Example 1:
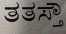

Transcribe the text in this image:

ತತಸ್ತೌ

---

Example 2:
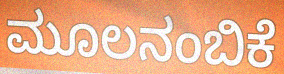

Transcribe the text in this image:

ಮೂಲನಂಬಿಕೆ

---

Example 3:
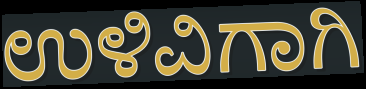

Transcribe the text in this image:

ಉಳಿವಿಗಾಗಿ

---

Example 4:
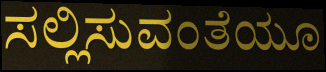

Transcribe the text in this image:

ಸಲ್ಲಿಸುವಂತೆಯೂ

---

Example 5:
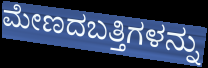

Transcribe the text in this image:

ಮೇಣದಬತ್ತಿಗಳನ್ನು